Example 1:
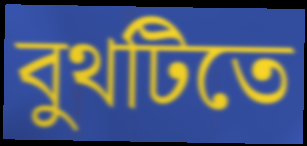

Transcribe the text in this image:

বুথটিতে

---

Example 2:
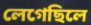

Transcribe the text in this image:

লেগেছিলে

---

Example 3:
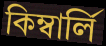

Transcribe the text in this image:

কিম্বার্লি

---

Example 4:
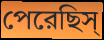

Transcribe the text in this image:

পেরেছিস্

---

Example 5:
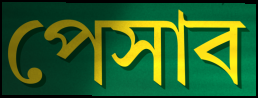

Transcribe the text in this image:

পেসাব